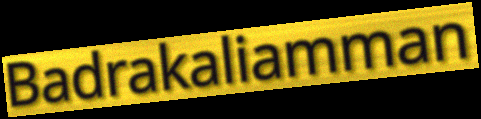
Badrakaliamman